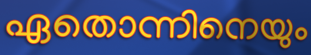
ഏതൊന്നിനെയും